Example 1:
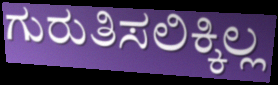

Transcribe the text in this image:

ಗುರುತಿಸಲಿಕ್ಕಿಲ್ಲ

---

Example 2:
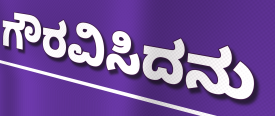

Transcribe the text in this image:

ಗೌರವಿಸಿದನು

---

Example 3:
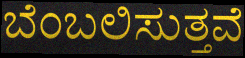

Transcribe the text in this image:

ಬೆಂಬಲಿಸುತ್ತವೆ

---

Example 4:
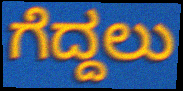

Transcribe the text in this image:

ಗೆದ್ದಲು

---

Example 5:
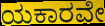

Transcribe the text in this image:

ಯಕಾರವೇ